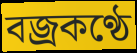
বজ্রকণ্ঠে